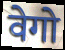
वेगो